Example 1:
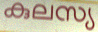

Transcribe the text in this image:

കുലസ്യ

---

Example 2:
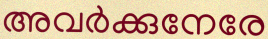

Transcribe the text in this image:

അവർക്കുനേരേ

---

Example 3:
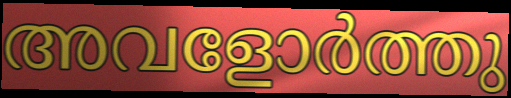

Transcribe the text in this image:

അവളോർത്തു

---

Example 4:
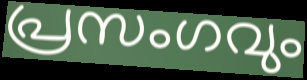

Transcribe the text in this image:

പ്രസംഗവും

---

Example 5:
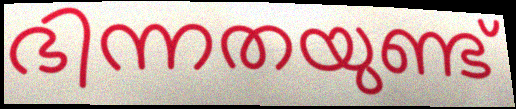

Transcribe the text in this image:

ഭിന്നതയുണ്ട്